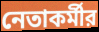
নেতাকর্মীর